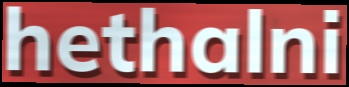
hethalni